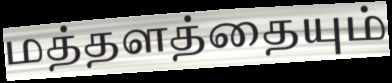
மத்தளத்தையும்